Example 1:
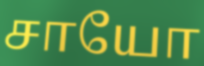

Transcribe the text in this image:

சாயோ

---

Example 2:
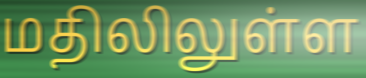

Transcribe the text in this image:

மதிலிலுள்ள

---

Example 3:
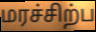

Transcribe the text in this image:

மரச்சிற்ப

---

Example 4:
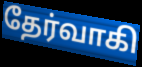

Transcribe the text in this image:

தேர்வாகி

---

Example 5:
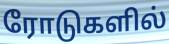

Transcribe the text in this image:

ரோடுகளில்